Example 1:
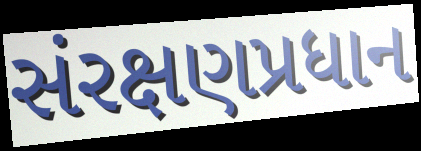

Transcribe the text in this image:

સંરક્ષણપ્રધાન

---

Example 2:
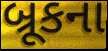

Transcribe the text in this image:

બ્રૂકના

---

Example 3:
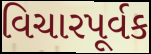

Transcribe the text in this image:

વિચારપૂર્વક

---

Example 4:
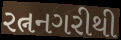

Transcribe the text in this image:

રત્નનગરીથી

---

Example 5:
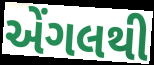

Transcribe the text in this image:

એંગલથી